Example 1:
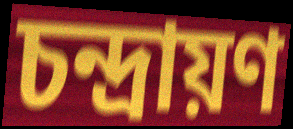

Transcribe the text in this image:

চন্দ্রায়ণ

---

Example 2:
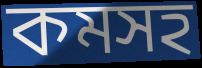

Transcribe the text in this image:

কমসহ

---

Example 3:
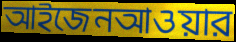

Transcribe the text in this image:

আইজেনআওয়ার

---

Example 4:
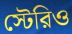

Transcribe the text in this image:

স্টেরিও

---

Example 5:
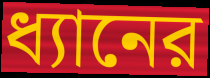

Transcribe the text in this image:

ধ্যানের